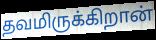
தவமிருக்கிறான்